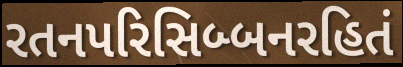
રતનપરિસિબ્બનરહિતં